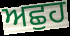
ਅਛੁਹ